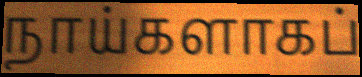
நாய்களாகப்